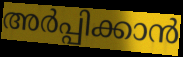
അർപ്പിക്കാൻ